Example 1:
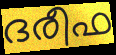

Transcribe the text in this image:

ദരീഫ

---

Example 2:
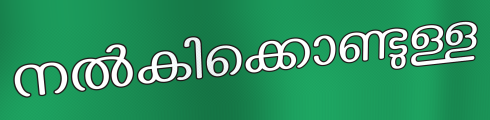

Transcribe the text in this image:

നൽകിക്കൊണ്ടുള്ള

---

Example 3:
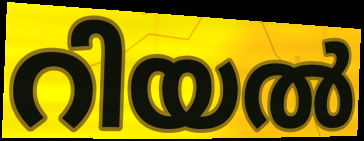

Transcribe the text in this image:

റിയൽ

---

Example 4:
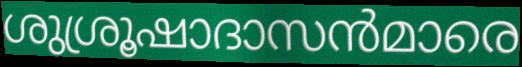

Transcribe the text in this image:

ശുശ്രൂഷാദാസൻമാരെ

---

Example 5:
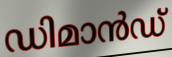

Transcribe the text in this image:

ഡിമാൻഡ്